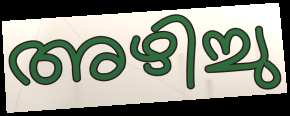
അഴിച്ചു